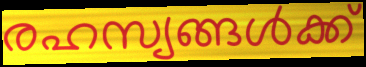
രഹസ്യങ്ങൾക്ക്